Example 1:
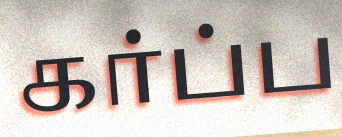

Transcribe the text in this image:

கர்ப்ப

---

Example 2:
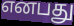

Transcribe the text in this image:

எனபது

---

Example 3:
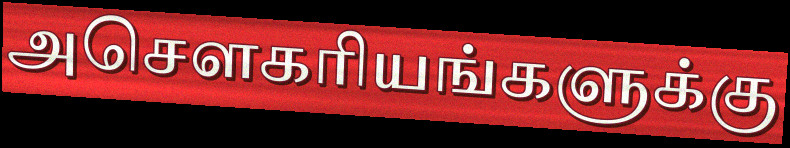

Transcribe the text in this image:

அசௌகரியங்களுக்கு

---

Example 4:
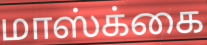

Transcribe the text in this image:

மாஸ்க்கை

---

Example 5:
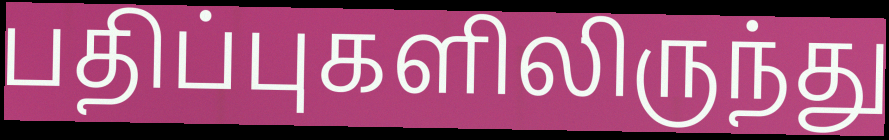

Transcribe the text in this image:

பதிப்புகளிலிருந்து